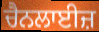
ਚੈਨਲਾਈਜ਼